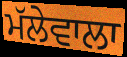
ਮੱਲੇਵਾਲਾ